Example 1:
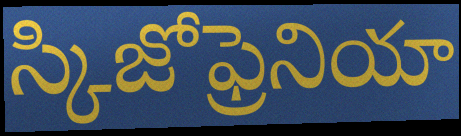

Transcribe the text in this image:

స్కిజోఫ్రెనియా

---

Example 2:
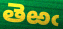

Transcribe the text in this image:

తెఱఁ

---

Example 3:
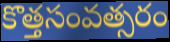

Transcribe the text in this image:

కొత్తసంవత్సరం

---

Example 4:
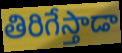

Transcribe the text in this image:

తిరిగేస్తాడా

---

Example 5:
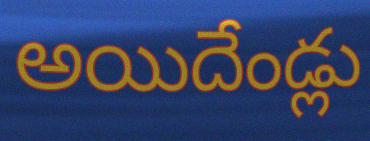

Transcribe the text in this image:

అయిదేండ్లు